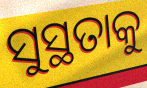
ସୁସ୍ଥତାକୁ